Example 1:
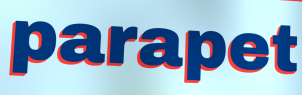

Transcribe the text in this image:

parapet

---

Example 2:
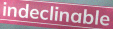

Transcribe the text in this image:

indeclinable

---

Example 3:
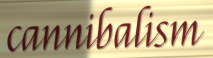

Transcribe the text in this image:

cannibalism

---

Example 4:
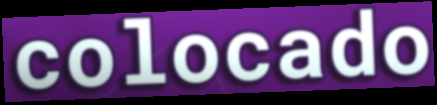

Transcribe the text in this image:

colocado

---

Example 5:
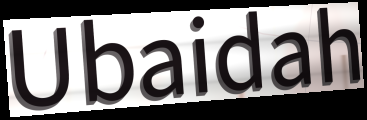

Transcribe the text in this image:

Ubaidah